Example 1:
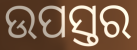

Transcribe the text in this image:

ଉପସ୍ତର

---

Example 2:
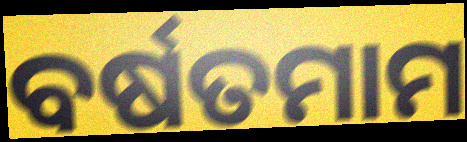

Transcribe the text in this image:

ବର୍ଷତମାମ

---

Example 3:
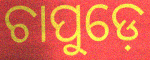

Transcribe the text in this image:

ଚାପୁଡ଼େ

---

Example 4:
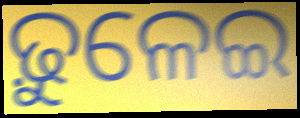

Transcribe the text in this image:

ଢ଼ୁଳେଇ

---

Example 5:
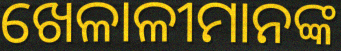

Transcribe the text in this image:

ଖେଳାଳୀମାନଙ୍କ